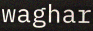
waghar